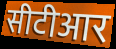
सीटीआर